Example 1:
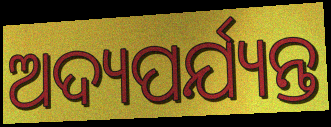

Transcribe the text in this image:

ଅଦ୍ୟପର୍ଯ୍ୟନ୍ତ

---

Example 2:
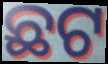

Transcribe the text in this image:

ଛଟ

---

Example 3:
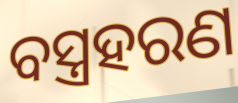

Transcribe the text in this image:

ବସ୍ତ୍ରହରଣ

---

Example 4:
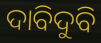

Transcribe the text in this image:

ଦାବିଦୁବି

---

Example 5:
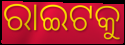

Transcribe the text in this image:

ରାଇଟକୁ